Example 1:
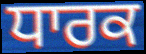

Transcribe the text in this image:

ਧਾਰਕ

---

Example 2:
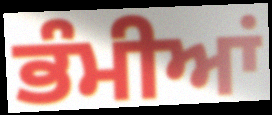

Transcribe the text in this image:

ਭੰਮੀਆਂ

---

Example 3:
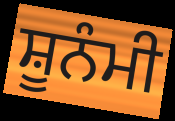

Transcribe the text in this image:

ਸ਼ੂਨੰਮੀ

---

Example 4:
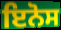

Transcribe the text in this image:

ਇਨੋਸ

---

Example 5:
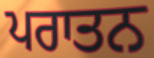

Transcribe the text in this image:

ਪਰਾਤਨ